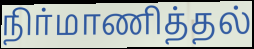
நிர்மாணித்தல்